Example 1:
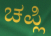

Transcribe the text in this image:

ಚಪ್ಲಿ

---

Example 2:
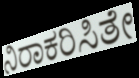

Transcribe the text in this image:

ನಿರಾಕರಿಸಿತೇ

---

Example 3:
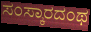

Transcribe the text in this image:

ಸಂಸ್ಕಾರದಂಥ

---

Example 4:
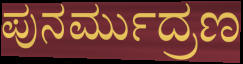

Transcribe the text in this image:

ಪುನರ್ಮುದ್ರಣ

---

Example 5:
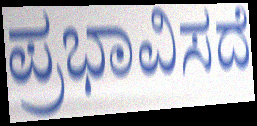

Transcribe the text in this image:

ಪ್ರಭಾವಿಸದೆ